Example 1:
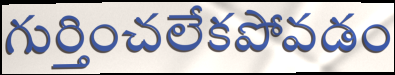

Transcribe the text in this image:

గుర్తించలేకపోవడం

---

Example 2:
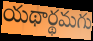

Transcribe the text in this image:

యథార్థమగు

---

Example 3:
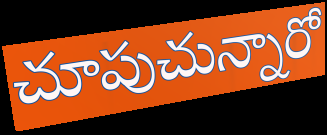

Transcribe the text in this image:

చూపుచున్నారో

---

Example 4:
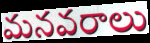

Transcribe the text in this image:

మనవరాలు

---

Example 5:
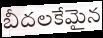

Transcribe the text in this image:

బీదలకేమైన